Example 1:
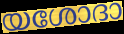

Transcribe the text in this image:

യശോദാ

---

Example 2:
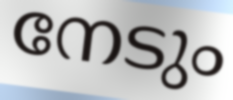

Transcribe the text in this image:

നേടും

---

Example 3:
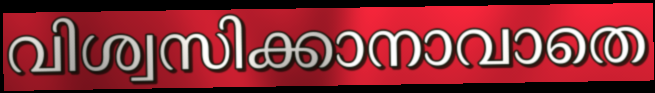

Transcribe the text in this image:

വിശ്വസിക്കാനാവാതെ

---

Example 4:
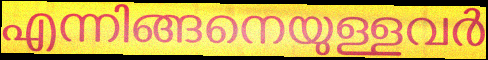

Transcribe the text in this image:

എന്നിങ്ങനെയുള്ളവർ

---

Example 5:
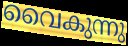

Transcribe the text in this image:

വൈകുന്നു